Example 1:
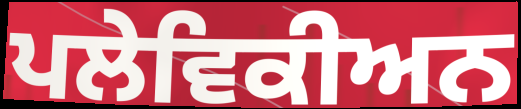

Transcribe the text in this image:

ਪਲੇਵਿਕੀਅਨ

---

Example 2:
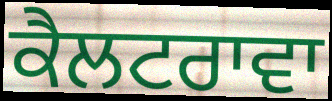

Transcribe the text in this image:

ਕੈਲਟਰਾਵਾ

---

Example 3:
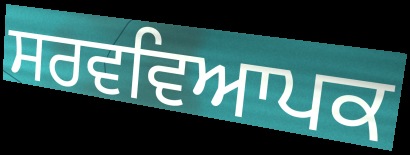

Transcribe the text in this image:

ਸਰਵਵਿਆਪਕ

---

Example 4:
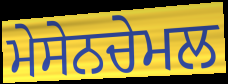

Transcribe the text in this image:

ਮੇਸੇਨਚੇਮਲ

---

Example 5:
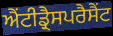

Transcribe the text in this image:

ਐਂਟੀਡ੍ਰੈਸਪਰੈਸੈਂਟ